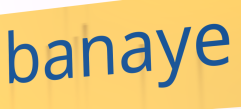
banaye